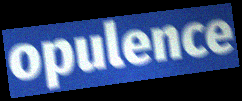
opulence